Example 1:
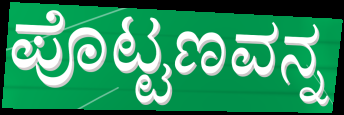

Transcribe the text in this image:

ಪೊಟ್ಟಣವನ್ನ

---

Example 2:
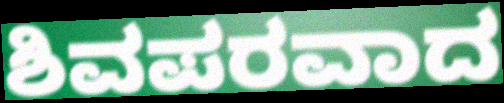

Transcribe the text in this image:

ಶಿವಪರವಾದ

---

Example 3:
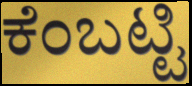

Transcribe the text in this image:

ಕೆಂಬಟ್ಟಿ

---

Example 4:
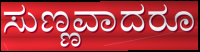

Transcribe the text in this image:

ಸುಣ್ಣವಾದರೂ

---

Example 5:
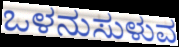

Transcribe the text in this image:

ಒಳನುಸುಳುವ